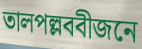
তালপল্লববীজনে